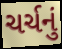
ચર્ચનું